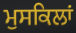
ਮੁਸਕਿਲਾਂ